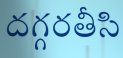
దగ్గరతీసి